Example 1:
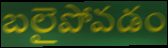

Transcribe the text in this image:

బలైపోవడం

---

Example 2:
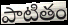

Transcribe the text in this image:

పాటితం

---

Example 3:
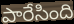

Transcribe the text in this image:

పారేసింది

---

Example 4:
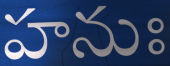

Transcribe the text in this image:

హనుః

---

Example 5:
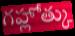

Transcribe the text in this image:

గహ్లోత్కు